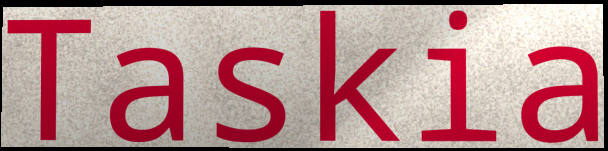
Taskia